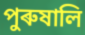
পুৰুষালি